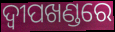
ଦ୍ଵୀପଖଣ୍ଡରେ